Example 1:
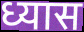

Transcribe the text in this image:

ध्यास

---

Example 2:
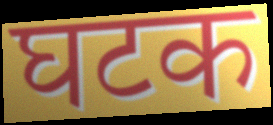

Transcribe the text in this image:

घटक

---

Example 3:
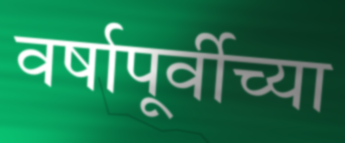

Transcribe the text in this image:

वर्षापूर्वीच्या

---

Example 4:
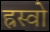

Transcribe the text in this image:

ह्रस्वो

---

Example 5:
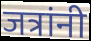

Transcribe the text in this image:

जत्रांनी